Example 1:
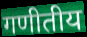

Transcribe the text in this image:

गणीतीय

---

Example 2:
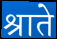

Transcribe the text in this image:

श्राते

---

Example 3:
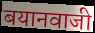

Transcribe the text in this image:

बयानवाजी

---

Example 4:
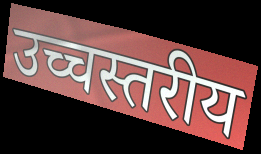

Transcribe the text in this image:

उच्चस्तरीय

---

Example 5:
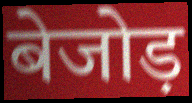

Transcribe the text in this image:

बेजोड़